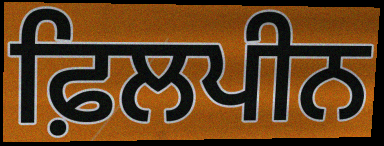
ਫ਼ਿਲਪੀਨ